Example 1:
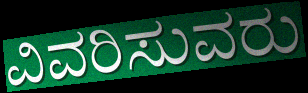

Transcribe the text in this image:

ವಿವರಿಸುವರು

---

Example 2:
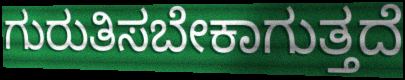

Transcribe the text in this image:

ಗುರುತಿಸಬೇಕಾಗುತ್ತದೆ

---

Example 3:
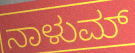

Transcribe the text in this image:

ನಾಳುಮ್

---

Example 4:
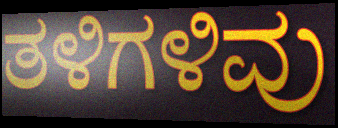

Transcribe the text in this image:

ತಳಿಗಳಿವು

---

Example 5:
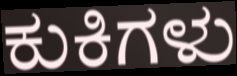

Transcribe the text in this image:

ಕುಕಿಗಳು